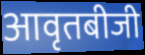
आवृतबीजी